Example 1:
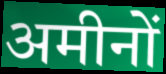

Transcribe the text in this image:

अमीनों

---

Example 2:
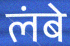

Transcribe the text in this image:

लंबे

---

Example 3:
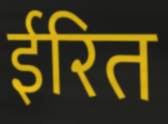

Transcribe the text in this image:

ईरित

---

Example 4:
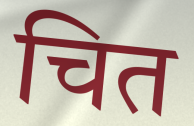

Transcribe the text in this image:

चित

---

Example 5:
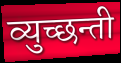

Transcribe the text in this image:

व्युच्छन्ती